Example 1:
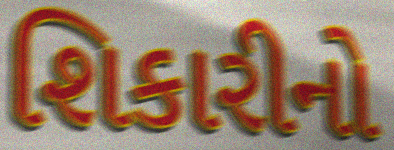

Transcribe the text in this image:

શિકારીનો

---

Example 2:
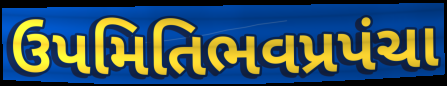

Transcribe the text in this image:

ઉપમિતિભવપ્રપંચા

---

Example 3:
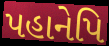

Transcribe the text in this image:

પહાનેપિ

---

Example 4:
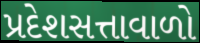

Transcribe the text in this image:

પ્રદેશસત્તાવાળો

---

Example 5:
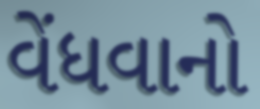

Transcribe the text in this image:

વેંધવાનો